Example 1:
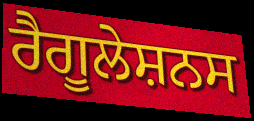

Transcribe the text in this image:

ਰੈਗੂਲੇਸ਼ਨਸ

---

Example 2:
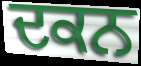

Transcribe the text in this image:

ਦਕਨ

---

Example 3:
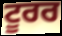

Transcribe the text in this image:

ਟੂਰਰ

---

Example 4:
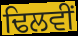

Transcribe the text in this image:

ਢਿਲਵੀਂ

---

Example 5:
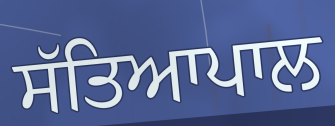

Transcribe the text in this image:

ਸੱਤਿਆਪਾਲ